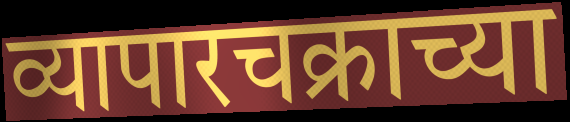
व्यापारचक्राच्या